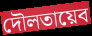
দৌলতায়েব